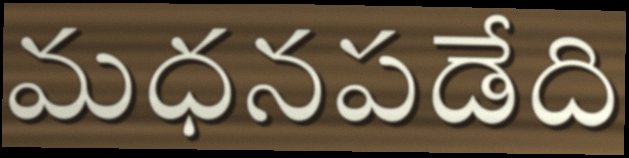
మధనపడేది